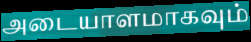
அடையாளமாகவும்